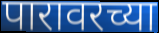
पारावरच्या